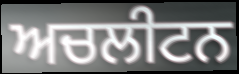
ਅਚਲੀਟਨ